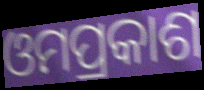
ଓମପ୍ରକାଶ